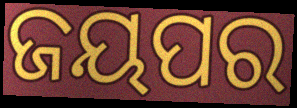
ଜୟପର